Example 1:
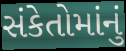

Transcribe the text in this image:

સંકેતોમાંનું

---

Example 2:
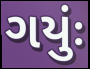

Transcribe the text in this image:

ગયુંઃ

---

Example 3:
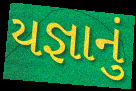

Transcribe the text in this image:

યજ્ઞાનું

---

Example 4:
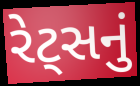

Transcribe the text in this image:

રેટ્સનું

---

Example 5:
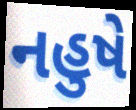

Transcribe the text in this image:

નહુષે